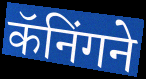
कॅनिंगने